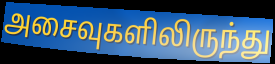
அசைவுகளிலிருந்து